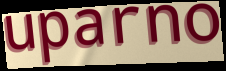
uparno